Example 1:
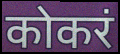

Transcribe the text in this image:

कोकरं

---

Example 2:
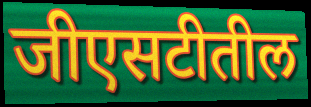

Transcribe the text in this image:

जीएसटीतील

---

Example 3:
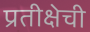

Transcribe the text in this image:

प्रतीक्षेची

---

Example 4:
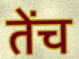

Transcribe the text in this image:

तेंच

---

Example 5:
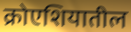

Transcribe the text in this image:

क्रोएशियातील